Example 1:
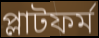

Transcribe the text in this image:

প্লাটফর্ম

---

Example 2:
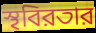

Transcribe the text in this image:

স্থবিরতার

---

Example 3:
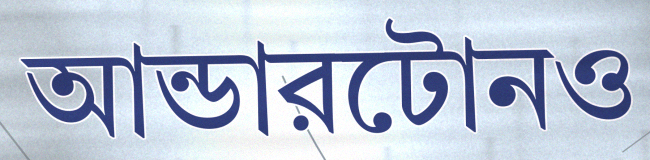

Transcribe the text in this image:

আন্ডারটোনও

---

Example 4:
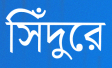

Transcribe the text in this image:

সিঁদুরে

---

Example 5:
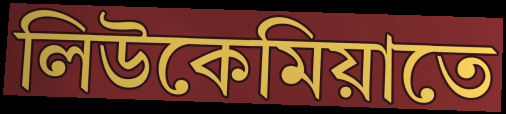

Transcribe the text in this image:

লিউকেমিয়াতে